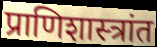
प्राणिशास्त्रांत